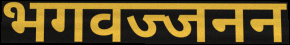
भगवज्जनन